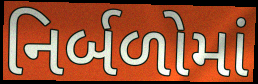
નિર્બળોમાં